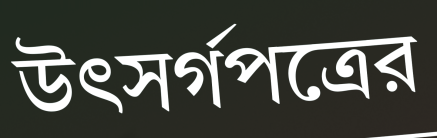
উৎসর্গপত্রের